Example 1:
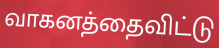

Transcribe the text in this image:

வாகனத்தைவிட்டு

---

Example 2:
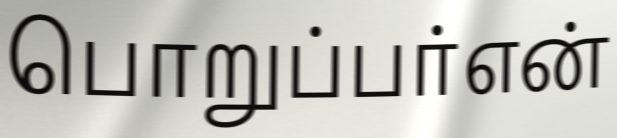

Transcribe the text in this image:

பொறுப்பர்என்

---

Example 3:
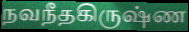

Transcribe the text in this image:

நவநீதகிருஷ்ண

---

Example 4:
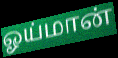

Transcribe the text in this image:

ஓய்மான்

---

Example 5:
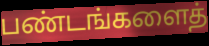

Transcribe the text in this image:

பண்டங்களைத்